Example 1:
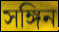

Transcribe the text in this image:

সঙ্গিন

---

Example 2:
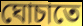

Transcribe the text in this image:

ঘোচাতে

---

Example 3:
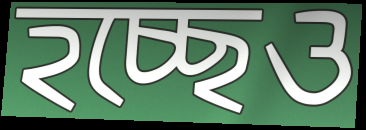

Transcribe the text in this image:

হচ্ছেও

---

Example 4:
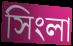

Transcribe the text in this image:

সিংলা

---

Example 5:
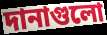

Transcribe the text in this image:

দানাগুলো